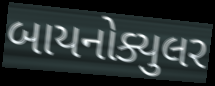
બાયનોક્યુલર